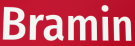
Bramin